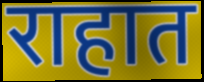
राहात